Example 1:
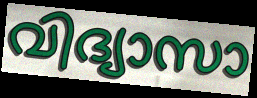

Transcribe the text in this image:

വിദ്യാസാ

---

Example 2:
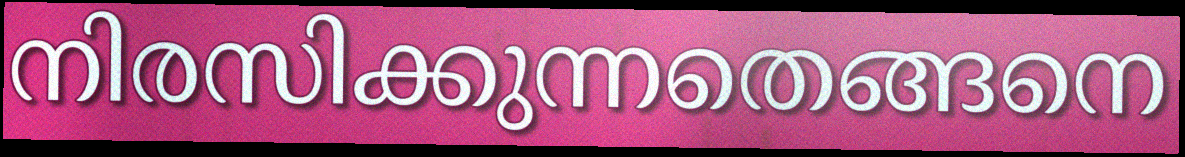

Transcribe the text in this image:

നിരസിക്കുന്നതെങ്ങനെ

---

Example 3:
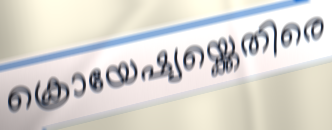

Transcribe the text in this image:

ക്രൊയേഷ്യയ്ക്കെതിരെ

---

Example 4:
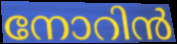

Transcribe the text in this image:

നോറിൻ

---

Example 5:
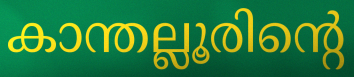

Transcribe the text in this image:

കാന്തല്ലൂരിന്റെ